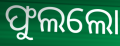
ଫୁଲଲୋ